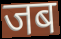
जब